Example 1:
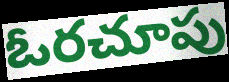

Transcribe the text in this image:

ఓరచూపు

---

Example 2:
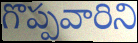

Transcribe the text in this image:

గొప్పవారిని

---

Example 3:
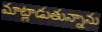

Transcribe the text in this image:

మాట్లాడుతున్నాను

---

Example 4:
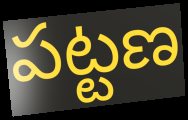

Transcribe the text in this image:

పట్టణ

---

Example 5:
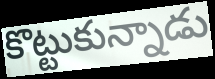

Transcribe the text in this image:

కొట్టుకున్నాడు